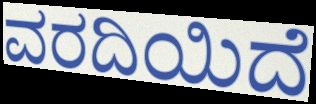
ವರದಿಯಿದೆ